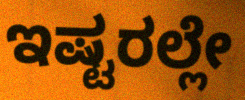
ಇಷ್ಟರಲ್ಲೇ